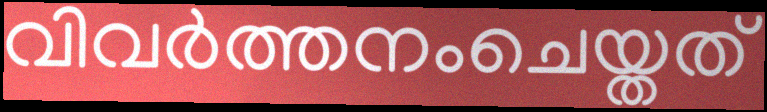
വിവർത്തനംചെയ്തത്